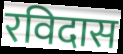
रविदास